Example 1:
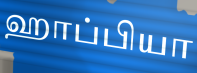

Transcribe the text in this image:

ஹாப்பியா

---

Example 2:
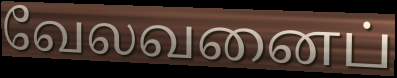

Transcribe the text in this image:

வேலவனைப்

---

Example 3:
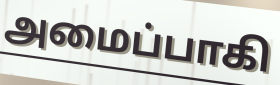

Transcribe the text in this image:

அமைப்பாகி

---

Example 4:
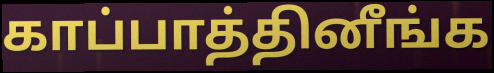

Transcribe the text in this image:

காப்பாத்தினீங்க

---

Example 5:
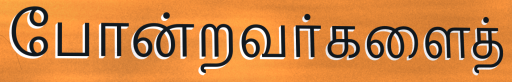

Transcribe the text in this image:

போன்றவர்களைத்